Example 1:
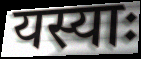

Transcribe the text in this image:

यस्याः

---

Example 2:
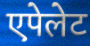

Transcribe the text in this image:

एपेलेट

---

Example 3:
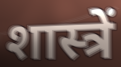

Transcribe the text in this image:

शास्त्रें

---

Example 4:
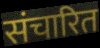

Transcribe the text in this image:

संचारित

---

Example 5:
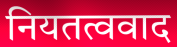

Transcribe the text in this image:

नियतत्ववाद